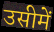
उसीमें